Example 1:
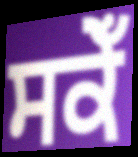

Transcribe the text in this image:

ਸਕੇਁ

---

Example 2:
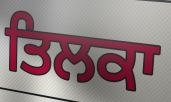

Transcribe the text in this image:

ਤਿਲਕਾ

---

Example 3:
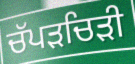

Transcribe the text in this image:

ਚੱਪੜਚਿੜੀ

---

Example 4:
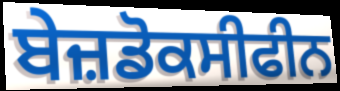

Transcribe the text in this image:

ਬੇਜ਼ਡੋਕਸੀਫੀਨ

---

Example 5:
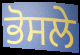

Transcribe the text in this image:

ਭੋਸਲੇ